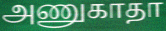
அணுகாதா